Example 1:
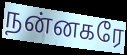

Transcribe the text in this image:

நன்னகரே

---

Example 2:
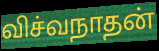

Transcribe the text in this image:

விச்வநாதன்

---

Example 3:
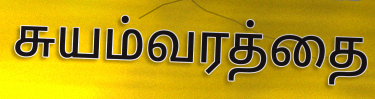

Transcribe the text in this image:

சுயம்வரத்தை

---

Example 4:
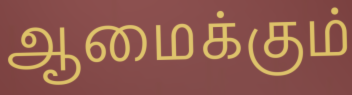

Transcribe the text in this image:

ஆமைக்கும்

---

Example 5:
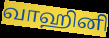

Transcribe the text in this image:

வாஹினி